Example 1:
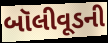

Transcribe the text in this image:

બૉલીવૂડની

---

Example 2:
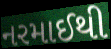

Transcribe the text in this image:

નરમાઈથી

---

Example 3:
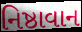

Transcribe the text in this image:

નિષ્ઠાવાન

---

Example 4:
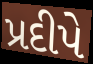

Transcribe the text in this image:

પ્રદીપે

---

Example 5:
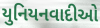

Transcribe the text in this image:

યુનિયનવાદીઓ